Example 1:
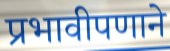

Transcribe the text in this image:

प्रभावीपणाने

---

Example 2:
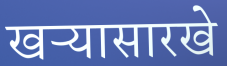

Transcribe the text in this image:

खऱ्यासारखे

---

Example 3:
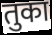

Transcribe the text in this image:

तुका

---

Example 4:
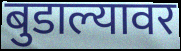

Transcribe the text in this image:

बुडाल्यावर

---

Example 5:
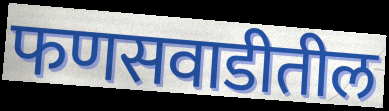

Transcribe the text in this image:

फणसवाडीतील